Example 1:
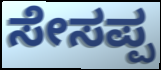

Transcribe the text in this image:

ಸೇಸಪ್ಪ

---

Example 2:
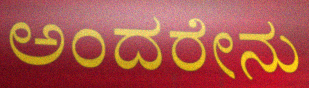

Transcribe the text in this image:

ಅಂದರೇನು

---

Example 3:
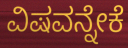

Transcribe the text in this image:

ವಿಷವನ್ನೇಕೆ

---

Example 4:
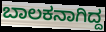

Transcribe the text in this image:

ಬಾಲಕನಾಗಿದ್ದ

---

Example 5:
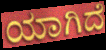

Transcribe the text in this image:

ಯಾಗಿದೆ